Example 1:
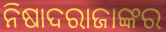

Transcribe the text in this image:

ନିଷାଦରାଜାଙ୍କର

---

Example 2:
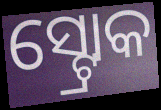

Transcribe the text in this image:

ସ୍ଟ୍ରୋକ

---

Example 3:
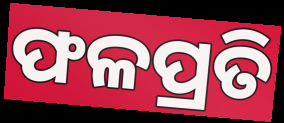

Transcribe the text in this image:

ଫଳପ୍ରତି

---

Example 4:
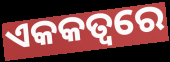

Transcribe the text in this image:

ଏକକତ୍ୱରେ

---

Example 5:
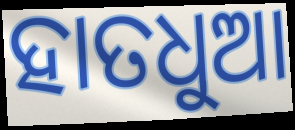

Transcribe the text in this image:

ହାତଧୁଆ